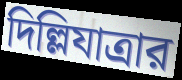
দিল্লিযাত্রার